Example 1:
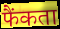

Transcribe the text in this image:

फैंकता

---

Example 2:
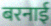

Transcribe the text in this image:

बरनाई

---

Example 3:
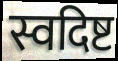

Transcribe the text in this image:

स्वदिष्ट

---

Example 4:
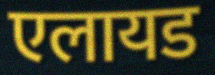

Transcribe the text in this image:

एलायड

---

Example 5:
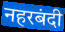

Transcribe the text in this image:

नहरबंदी